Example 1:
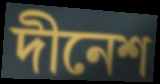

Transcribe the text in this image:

দীনেশ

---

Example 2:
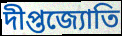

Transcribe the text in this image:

দীপ্তজ্যোতি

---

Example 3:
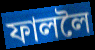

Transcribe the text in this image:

ফাললৈ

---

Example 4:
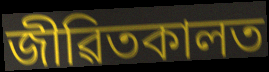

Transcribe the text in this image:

জীৱিতকালত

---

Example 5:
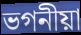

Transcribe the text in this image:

ভগনীয়া